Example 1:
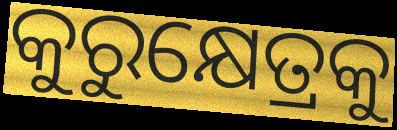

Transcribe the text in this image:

କୁରୁକ୍ଷେତ୍ରକୁ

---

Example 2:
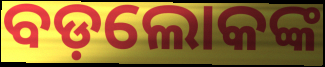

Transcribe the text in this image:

ବଡ଼ଲୋକଙ୍କ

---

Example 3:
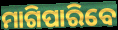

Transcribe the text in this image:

ମାଗିପାରିବେ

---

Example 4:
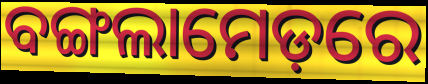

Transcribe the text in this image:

ବଙ୍ଗଲାମେଡ଼ରେ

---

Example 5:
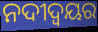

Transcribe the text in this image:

ନଦୀଦ୍ବୟର